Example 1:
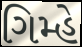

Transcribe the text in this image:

ગિમ્હે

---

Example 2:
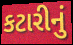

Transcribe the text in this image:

કટારીનું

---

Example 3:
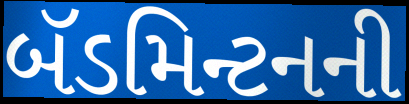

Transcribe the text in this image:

બૅડમિન્ટનની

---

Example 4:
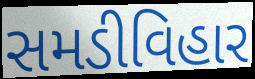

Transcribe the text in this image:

સમડીવિહાર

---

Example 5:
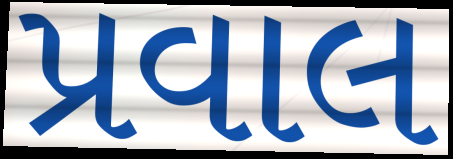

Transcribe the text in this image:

પ્રવાલ